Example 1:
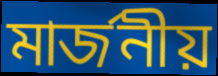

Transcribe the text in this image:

মার্জনীয়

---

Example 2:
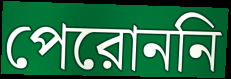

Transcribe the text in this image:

পেরোননি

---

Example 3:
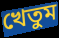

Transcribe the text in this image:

খেতুম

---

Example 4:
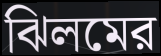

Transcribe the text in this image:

ঝিলমের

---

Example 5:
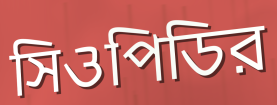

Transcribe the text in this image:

সিওপিডির